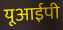
यूआईपी